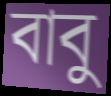
বাবু